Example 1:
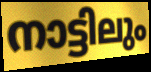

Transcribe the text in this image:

നാട്ടിലും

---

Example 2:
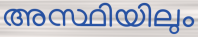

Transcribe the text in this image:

അസ്ഥിയിലും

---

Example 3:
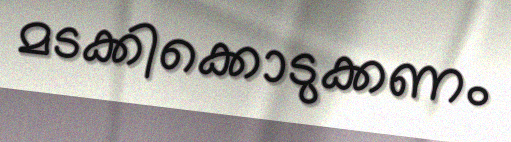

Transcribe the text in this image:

മടക്കിക്കൊടുക്കണം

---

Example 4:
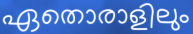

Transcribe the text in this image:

ഏതൊരാളിലും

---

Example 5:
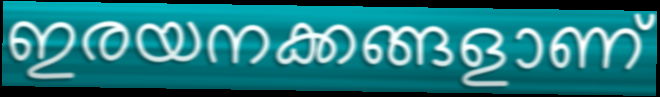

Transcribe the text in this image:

ഇരയനക്കങ്ങളാണ്